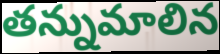
తన్నుమాలిన